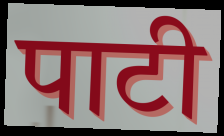
पाटी